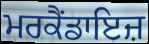
ਮਰਕੈਂਡਾਇਜ਼